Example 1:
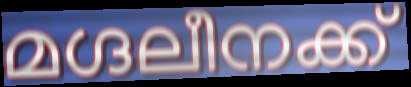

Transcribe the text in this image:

മഗ്ദലീനക്ക്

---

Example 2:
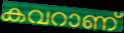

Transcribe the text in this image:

കവറാണ്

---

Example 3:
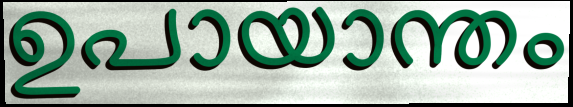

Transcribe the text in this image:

ഉപായാന്തം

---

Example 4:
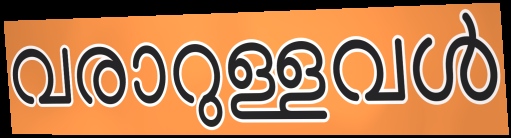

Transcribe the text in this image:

വരാറുള്ളവൾ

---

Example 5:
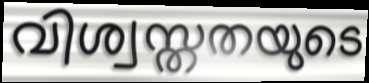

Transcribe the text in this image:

വിശ്വസ്തതയുടെ